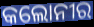
କଲୋନୀର